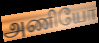
அணியோ